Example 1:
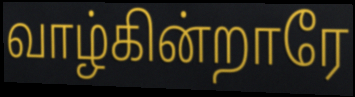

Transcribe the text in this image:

வாழ்கின்றாரே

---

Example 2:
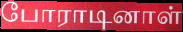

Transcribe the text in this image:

போராடினாள்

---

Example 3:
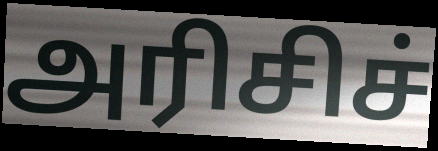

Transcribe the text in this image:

அரிசிச்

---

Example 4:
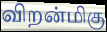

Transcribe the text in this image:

விறன்மிகு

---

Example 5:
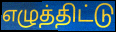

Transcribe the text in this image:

எழுத்திட்டு